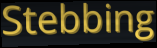
Stebbing